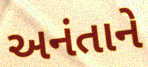
અનંતાને